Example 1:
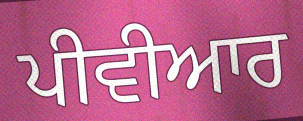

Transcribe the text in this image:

ਪੀਵੀਆਰ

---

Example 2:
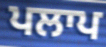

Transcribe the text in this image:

ਪਲਾਪ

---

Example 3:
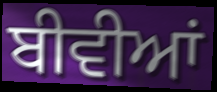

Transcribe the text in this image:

ਬੀਵੀਆਂ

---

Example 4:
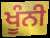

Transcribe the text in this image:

ਖੂੰਨੀ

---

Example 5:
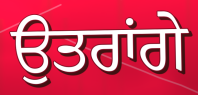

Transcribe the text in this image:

ਉਤਰਾਂਗੇ